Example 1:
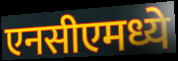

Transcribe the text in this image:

एनसीएमध्ये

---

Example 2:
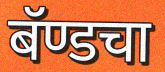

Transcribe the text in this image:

बॅण्डचा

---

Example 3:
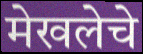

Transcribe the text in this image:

मेखलेचे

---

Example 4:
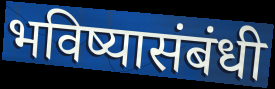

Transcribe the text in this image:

भविष्यासंबंधी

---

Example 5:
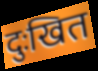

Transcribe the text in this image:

दुःखित